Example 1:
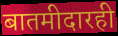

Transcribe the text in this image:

बातमीदारही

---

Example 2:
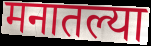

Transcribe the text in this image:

मनातल्या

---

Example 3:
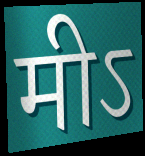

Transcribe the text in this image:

मीऽ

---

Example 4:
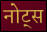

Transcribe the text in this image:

नोट्‌स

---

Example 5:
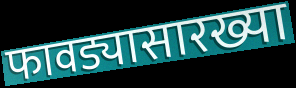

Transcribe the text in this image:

फावड्यासारख्या